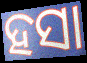
ହସା